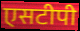
एसटीपी